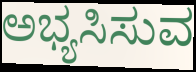
ಅಭ್ಯಸಿಸುವ